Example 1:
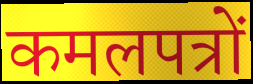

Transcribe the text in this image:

कमलपत्रों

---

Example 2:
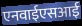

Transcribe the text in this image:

एनवाईएसआई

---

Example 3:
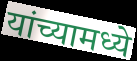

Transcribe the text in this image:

यांच्यामध्ये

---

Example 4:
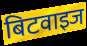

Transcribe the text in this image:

बिटवाइज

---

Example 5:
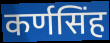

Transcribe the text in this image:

कर्णसिंह